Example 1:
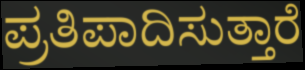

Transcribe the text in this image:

ಪ್ರತಿಪಾದಿಸುತ್ತಾರೆ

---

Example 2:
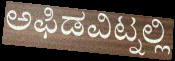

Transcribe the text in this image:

ಅಫಿಡವಿಟ್ನಲ್ಲಿ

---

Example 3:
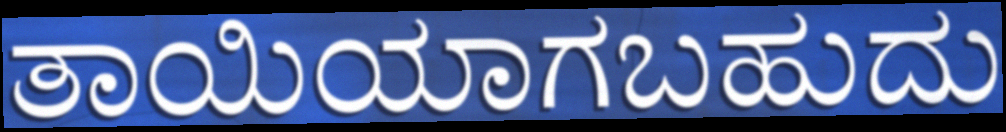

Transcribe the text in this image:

ತಾಯಿಯಾಗಬಹುದು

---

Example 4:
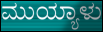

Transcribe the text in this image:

ಮುಯ್ಯಾಳು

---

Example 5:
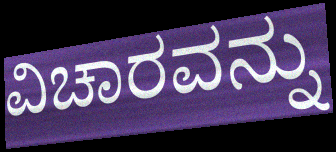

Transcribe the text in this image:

ವಿಚಾರವನ್ನು